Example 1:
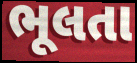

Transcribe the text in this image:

ભૂલતા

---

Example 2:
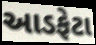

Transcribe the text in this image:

આડફેટા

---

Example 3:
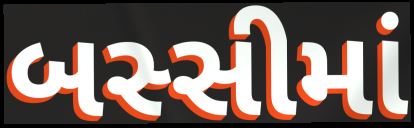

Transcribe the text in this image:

બસ્સીમાં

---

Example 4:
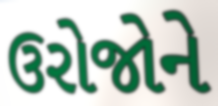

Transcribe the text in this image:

ઉરોજોને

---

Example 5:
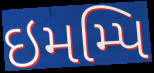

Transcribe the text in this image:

ઇમમ્પિ